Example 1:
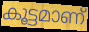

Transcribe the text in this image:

കൂട്ടമാണ്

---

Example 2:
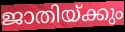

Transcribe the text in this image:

ജാതിയ്ക്കും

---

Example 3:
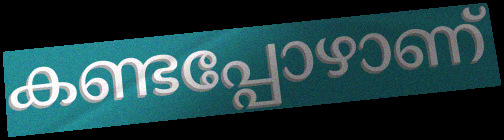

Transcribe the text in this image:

കണ്ടപ്പോഴാണ്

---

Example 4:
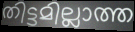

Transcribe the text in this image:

തിട്ടമില്ലാത്ത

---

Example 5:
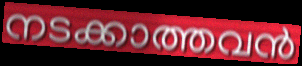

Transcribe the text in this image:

നടക്കാത്തവൻ